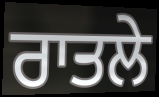
ਰਾਤਲੇ